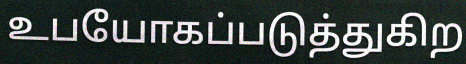
உபயோகப்படுத்துகிற